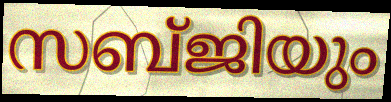
സബ്ജിയും